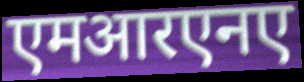
एमआरएनए